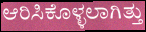
ಆರಿಸಿಕೊಳ್ಳಲಾಗಿತ್ತು